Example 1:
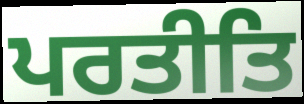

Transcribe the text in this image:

ਪਰਤੀਤਿ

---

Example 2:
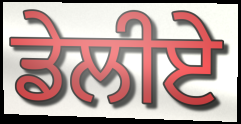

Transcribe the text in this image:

ਡੇਲੀਏ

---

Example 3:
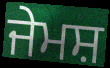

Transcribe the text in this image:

ਜੇਮਸ਼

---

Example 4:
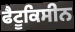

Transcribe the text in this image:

ਫੈਟੂਕਿਸੀਨ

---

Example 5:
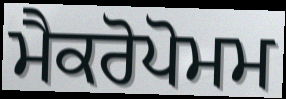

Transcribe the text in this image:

ਮੈਕਰੋਪੋਮਮ